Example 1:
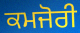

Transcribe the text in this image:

ਕਮਜੋਰੀ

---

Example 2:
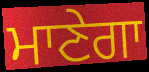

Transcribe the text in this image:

ਮਾਣੇਗਾ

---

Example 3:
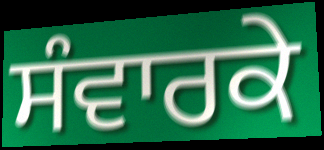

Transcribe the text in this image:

ਸੰਵਾਰਕੇ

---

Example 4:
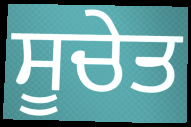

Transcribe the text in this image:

ਸੂਚੇਤ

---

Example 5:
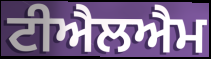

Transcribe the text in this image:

ਟੀਐਲਐਮ